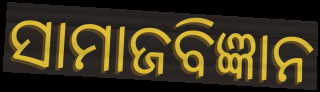
ସାମାଜବିଜ୍ଞାନ